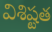
విశిష్టత